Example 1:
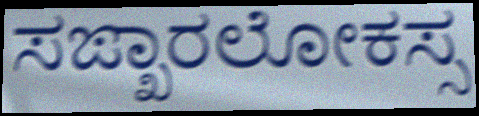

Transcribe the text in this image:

ಸಙ್ಖಾರಲೋಕಸ್ಸ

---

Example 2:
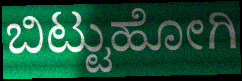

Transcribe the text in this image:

ಬಿಟ್ಟುಹೋಗಿ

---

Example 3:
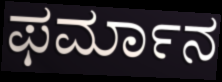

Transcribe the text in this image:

ಫರ್ಮಾನ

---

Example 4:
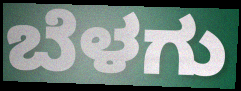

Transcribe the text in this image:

ಬೆಳಗು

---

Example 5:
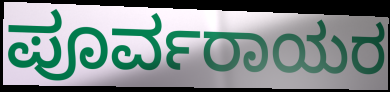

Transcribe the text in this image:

ಪೂರ್ವರಾಯರ